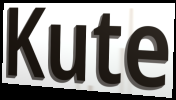
Kute